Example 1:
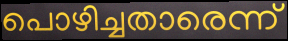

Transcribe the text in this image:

പൊഴിച്ചതാരെന്ന്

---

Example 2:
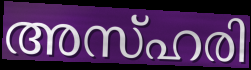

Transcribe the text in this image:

അസ്ഹരി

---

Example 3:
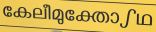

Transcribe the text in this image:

കേലീമുക്തോഽഥ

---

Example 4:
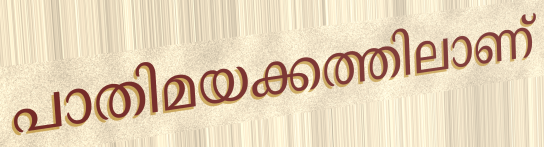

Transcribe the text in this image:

പാതിമയക്കത്തിലാണ്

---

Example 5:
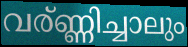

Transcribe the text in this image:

വര്ണ്ണിച്ചാലും